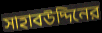
সাহাবউদ্দিনের